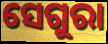
ସେଗୁରା